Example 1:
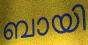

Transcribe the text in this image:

ബായി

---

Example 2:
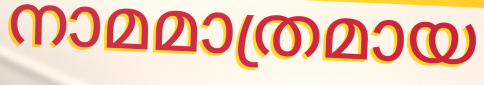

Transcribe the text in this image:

നാമമാത്രമായ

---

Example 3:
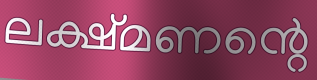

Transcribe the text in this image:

ലക്ഷ്മണന്റെ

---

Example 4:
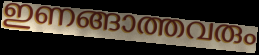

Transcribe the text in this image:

ഇണങ്ങാത്തവരും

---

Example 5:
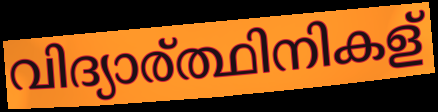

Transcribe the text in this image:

വിദ്യാര്ത്ഥിനികള്